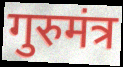
गुरुमंत्र